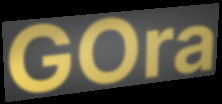
GOra